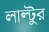
লাল্টুর